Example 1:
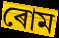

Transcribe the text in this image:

ৰোম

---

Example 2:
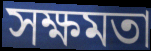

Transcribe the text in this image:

সক্ষমতা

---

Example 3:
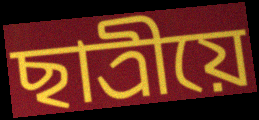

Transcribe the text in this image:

ছাত্ৰীয়ে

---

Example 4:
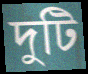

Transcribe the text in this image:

দুটি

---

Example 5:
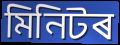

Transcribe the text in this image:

মিনিটৰ